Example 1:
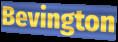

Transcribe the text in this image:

Bevington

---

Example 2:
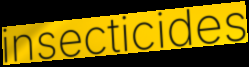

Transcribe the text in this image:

insecticides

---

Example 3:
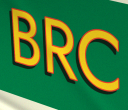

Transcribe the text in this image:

BRC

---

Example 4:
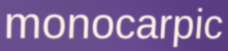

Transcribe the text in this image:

monocarpic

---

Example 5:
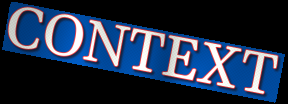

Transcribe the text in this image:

CONTEXT